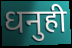
धनुही